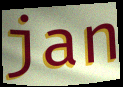
jan